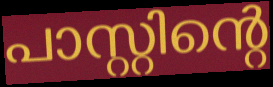
പാസ്റ്റിന്റെ